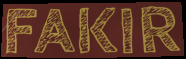
FAKIR